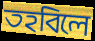
তহবিলে